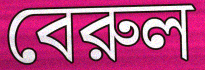
বেরুল